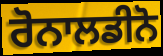
ਰੋਨਾਲਡੀਨੋ